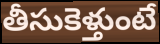
తీసుకెళ్తుంటే